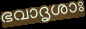
ഭവാദൃശാഃ